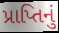
પ્રાપ્‍તિનું